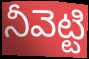
నీవెట్టి